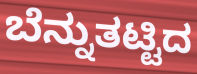
ಬೆನ್ನುತಟ್ಟಿದ